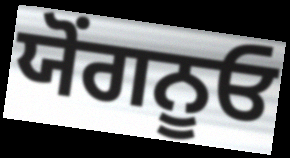
ਯੋਂਗਨੂਓ